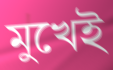
মুখেই